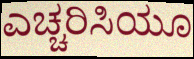
ಎಚ್ಚರಿಸಿಯೂ